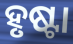
ହୃଷ୍ଟା